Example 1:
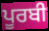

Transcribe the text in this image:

ਪੂਰਬੀ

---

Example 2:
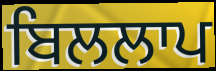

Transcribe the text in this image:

ਬਿਲਲਾਪ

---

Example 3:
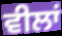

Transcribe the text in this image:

ਵੀਲਾਂ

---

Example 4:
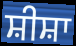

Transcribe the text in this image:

ਸ਼ੀਸ਼ਾ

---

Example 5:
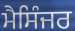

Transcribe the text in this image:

ਮੈਸਿੰਜਰ